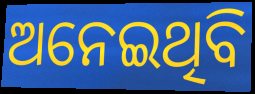
ଅନେଇଥିବି